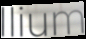
Ilium